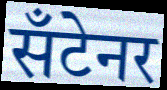
सँटेनर